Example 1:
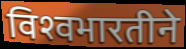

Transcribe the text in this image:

विश्वभारतीने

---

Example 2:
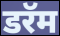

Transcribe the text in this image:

डरॅम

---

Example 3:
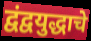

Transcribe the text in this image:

द्वंद्वयुद्धाचे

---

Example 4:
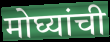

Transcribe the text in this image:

मोघ्यांची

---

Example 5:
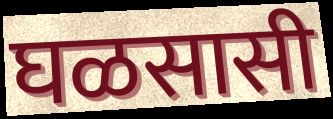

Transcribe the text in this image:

घळसासी